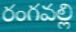
రంగవల్లి